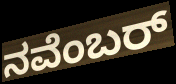
ನವೆಂಬರ್